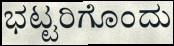
ಭಟ್ಟರಿಗೊಂದು